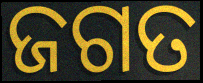
ଜଗତ